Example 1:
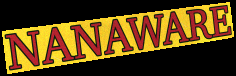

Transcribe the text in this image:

NANAWARE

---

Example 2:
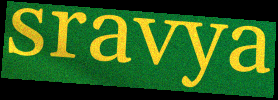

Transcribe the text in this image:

sravya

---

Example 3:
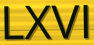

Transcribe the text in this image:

LXVI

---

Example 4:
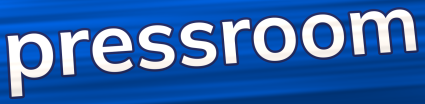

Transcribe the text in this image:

pressroom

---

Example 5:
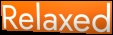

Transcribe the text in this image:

Relaxed